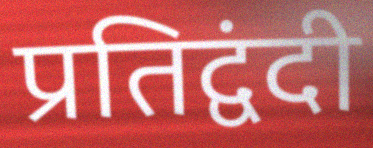
प्रतिद्वंदी